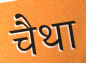
चैथा